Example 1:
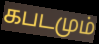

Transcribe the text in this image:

கபடமும்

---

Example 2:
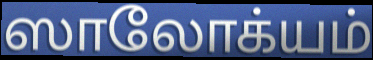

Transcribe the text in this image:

ஸாலோக்யம்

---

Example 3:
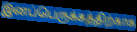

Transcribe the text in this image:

இனப்பெருக்கத்திற்காக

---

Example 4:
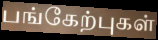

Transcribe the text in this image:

பங்கேற்புகள்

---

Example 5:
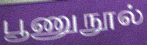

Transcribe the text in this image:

பூணுநூல்